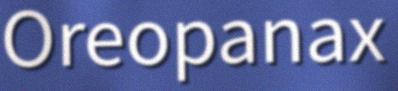
Oreopanax